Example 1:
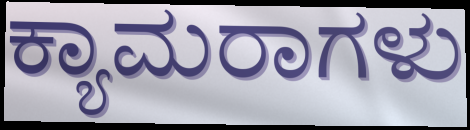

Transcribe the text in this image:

ಕ್ಯಾಮರಾಗಳು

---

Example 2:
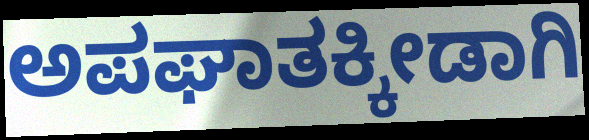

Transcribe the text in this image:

ಅಪಘಾತಕ್ಕೀಡಾಗಿ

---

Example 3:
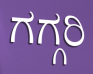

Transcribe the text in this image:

ಗಗ್ಗರಿ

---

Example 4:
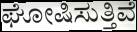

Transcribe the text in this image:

ಘೋಷಿಸುತ್ತಿವೆ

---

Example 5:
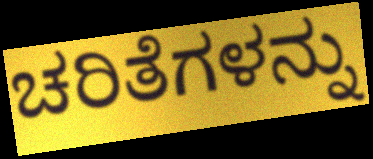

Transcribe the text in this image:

ಚರಿತೆಗಳನ್ನು